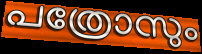
പത്രോസും